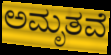
ಅಮೃತವೆ